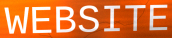
WEBSITE